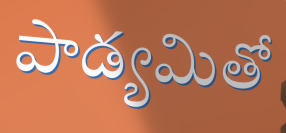
పాడ్యమితో